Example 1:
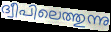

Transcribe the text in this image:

ദ്വീപിലെത്തുന്നു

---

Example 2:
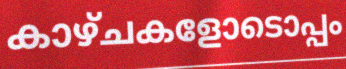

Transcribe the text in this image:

കാഴ്ചകളോടൊപ്പം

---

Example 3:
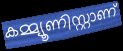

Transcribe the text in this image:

കമ്മ്യൂണിസ്റ്റാണ്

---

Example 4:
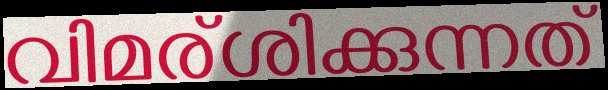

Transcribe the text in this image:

വിമര്ശിക്കുന്നത്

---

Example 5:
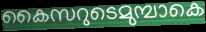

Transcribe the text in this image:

കൈസറുടെമുമ്പാകെ